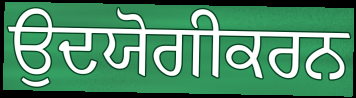
ਉਦਯੋਗੀਕਰਨ